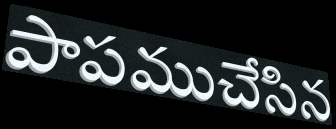
పాపముచేసిన